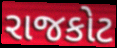
રાજકોટ